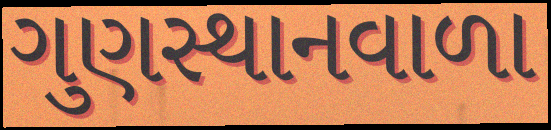
ગુણસ્થાનવાળા